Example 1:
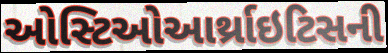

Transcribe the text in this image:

ઓસ્ટિઓઆર્થ્રાઇટિસની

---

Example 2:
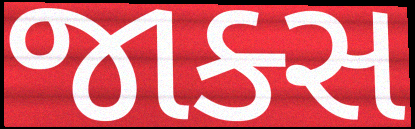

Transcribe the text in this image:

જાક્સ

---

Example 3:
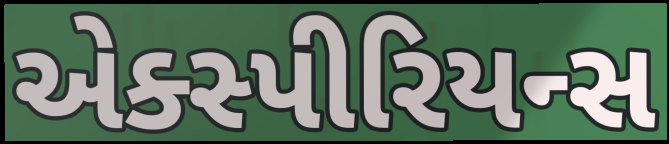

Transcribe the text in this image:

એક્સ્પીરિયન્સ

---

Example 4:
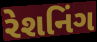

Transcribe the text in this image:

રેશનિંગ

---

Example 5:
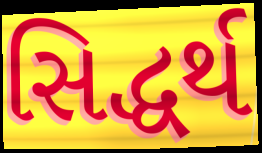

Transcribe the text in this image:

સિદ્ધર્થ